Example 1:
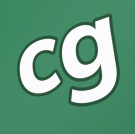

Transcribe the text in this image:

cg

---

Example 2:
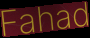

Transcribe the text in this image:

Fahad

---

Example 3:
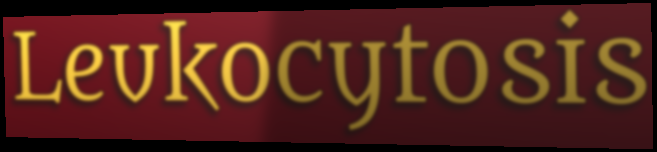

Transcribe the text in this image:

Leukocytosis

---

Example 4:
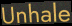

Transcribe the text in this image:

Unhale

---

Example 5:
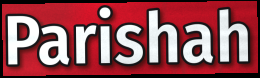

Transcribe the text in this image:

Parishah